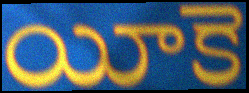
యీకె